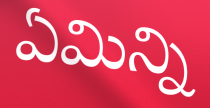
ఏమిన్ని